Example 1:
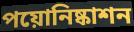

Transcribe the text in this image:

পয়োনিষ্কাশন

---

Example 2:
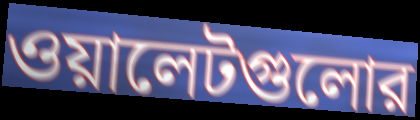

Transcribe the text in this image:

ওয়ালেটগুলোর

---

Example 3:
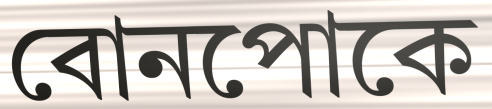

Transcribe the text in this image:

বোনপোকে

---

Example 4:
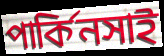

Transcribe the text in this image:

পার্কিনসাই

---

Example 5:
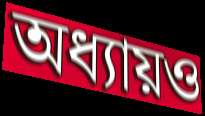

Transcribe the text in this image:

অধ্যায়ও